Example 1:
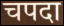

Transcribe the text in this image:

चपदा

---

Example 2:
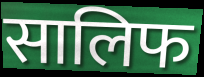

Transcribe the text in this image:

सालिफ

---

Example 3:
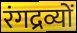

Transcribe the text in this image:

रंगद्रव्यों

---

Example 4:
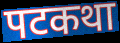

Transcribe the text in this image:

पटकथा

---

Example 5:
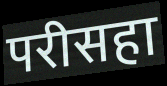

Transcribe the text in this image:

परीसहा